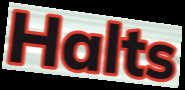
Halts